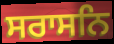
ਸਰਾਸਨਿ